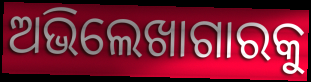
ଅଭିଲେଖାଗାରକୁ